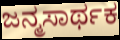
ಜನ್ಮಸಾರ್ಥಕ